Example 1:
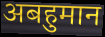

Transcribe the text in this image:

अबहुमान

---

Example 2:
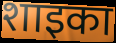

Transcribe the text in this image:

शाइका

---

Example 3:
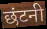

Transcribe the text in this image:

छंटनी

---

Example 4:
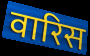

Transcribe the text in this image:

वारिस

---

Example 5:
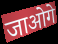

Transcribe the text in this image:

जाओगे